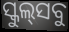
ସ୍କୁଲ୍‍ସବୁ